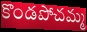
కొండపోచమ్మ